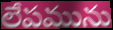
లేపమును